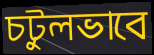
চটুলভাবে